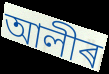
আলীৰ